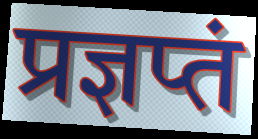
प्रज्ञप्तं